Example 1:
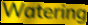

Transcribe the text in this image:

Watering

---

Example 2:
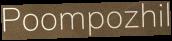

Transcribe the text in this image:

Poompozhil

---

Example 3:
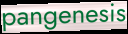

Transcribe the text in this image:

pangenesis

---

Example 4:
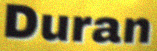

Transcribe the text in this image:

Duran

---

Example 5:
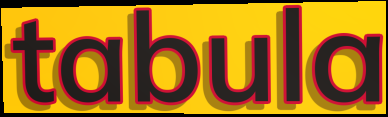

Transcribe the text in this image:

tabula